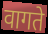
वागते